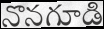
నొనగూడి